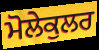
ਮੋਲੇਕੁਲਰ